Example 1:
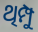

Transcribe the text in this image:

ଥିମ୍ପୁ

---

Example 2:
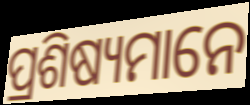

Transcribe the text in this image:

ପ୍ରଶିଷ୍ୟମାନେ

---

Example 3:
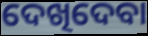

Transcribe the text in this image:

ଦେଖିଦେବା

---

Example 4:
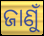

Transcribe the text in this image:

ଜାଣୁଁ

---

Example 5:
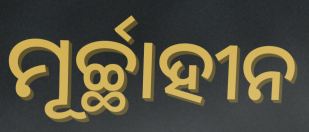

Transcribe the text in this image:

ମୂର୍ଚ୍ଛାହୀନ